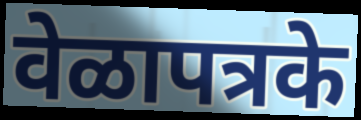
वेळापत्रके